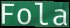
Fola